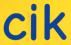
cik